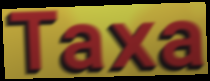
Taxa